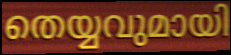
തെയ്യവുമായി